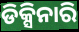
ଡିକ୍ସିନାରି